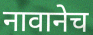
नावानेच